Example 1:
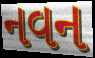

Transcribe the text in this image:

નવન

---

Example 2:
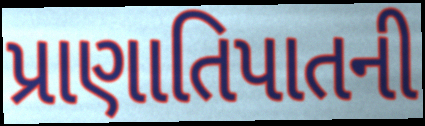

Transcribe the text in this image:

પ્રાણાતિપાતની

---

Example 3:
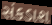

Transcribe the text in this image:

સંકડાશ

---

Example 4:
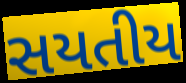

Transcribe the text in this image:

સયતીય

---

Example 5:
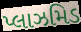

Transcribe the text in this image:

પ્લાઝમિડ